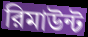
রিমাউন্ট